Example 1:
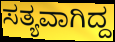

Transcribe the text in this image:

ಸತ್ಯವಾಗಿದ್ದ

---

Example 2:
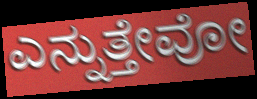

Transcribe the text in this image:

ಎನ್ನುತ್ತೇವೋ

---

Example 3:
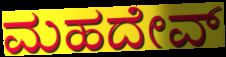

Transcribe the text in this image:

ಮಹದೇವ್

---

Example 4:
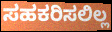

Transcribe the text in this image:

ಸಹಕರಿಸಲಿಲ್ಲ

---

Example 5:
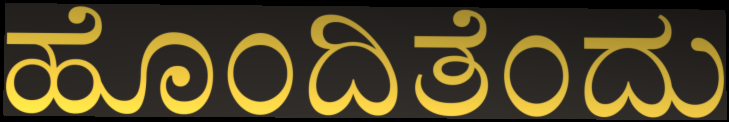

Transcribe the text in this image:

ಹೊಂದಿತೆಂದು